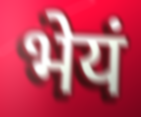
भेयं